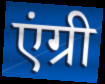
एंग्री